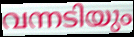
വന്നടിയും